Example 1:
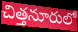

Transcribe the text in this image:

చిత్తనూరులో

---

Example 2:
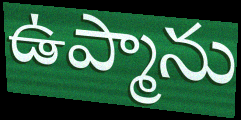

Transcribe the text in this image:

ఉప్మాను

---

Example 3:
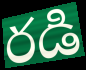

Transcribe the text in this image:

రడి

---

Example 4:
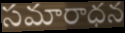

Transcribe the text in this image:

సమారాధన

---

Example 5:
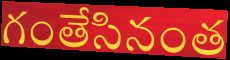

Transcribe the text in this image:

గంతేసినంత